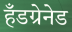
हँडग्रेनेड